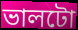
ভালটো